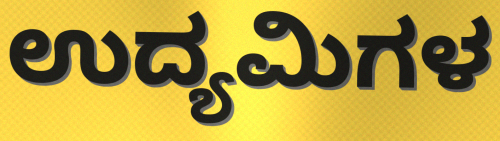
ಉದ್ಯಮಿಗಳ